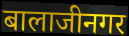
बालाजीनगर